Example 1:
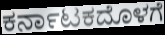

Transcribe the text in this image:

ಕರ್ನಾಟಕದೊಳಗೆ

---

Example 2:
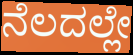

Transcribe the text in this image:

ನೆಲದಲ್ಲೇ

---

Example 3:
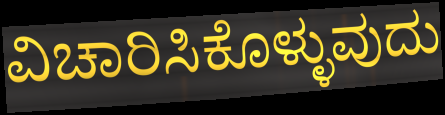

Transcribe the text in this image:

ವಿಚಾರಿಸಿಕೊಳ್ಳುವುದು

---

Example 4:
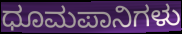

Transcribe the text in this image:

ಧೂಮಪಾನಿಗಳು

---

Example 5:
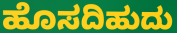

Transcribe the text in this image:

ಹೊಸದಿಹುದು